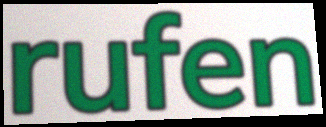
rufen